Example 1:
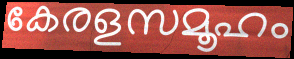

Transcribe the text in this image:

കേരളസമൂഹം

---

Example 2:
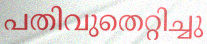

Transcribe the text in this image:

പതിവുതെറ്റിച്ചു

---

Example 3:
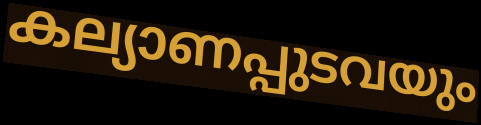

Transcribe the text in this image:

കല്യാണപ്പുടവയും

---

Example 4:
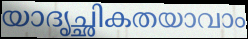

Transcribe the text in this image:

യാദൃച്ഛികതയാവാം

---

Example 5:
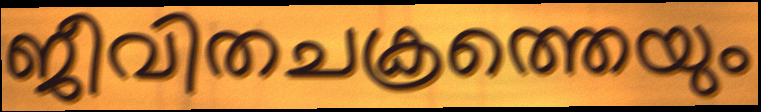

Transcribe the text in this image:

ജീവിതചക്രത്തെയും